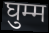
घुम्म